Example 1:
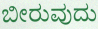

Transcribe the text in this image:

ಬೀರುವುದು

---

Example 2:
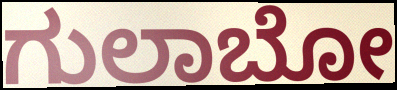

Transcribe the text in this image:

ಗುಲಾಬೋ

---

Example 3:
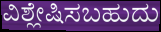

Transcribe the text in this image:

ವಿಶ್ಲೇಷಿಸಬಹುದು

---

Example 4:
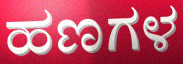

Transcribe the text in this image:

ಹಣಗಳ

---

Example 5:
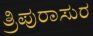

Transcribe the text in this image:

ತ್ರಿಪುರಾಸುರ